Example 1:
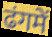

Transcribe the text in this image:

ढंगमें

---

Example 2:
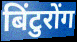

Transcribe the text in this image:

बिंटुरोंग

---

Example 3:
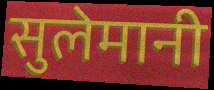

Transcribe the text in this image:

सुलेमानी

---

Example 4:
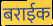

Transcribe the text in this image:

बराईक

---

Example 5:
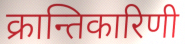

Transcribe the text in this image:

क्रान्तिकारिणी